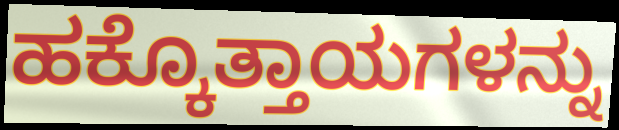
ಹಕ್ಕೊತ್ತಾಯಗಳನ್ನು